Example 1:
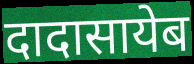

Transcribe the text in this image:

दादासायेब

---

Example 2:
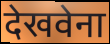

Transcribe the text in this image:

देखवेना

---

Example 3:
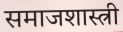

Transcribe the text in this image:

समाजशास्त्री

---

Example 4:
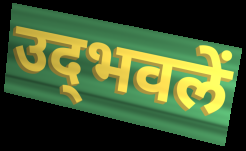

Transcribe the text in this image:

उद्‍भवलें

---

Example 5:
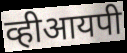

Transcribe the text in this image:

व्हीआयपी